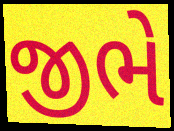
જીભે